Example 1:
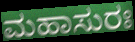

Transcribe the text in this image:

ಮಹಾಸುರಃ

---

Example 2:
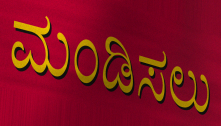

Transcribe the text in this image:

ಮಂಡಿಸಲು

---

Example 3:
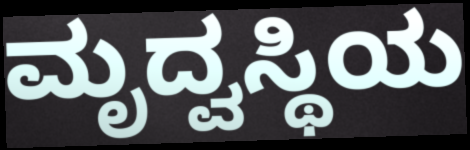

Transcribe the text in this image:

ಮೃದ್ವಸ್ಥಿಯ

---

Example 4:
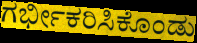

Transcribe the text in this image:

ಗರ್ಭೀಕರಿಸಿಕೊಂಡು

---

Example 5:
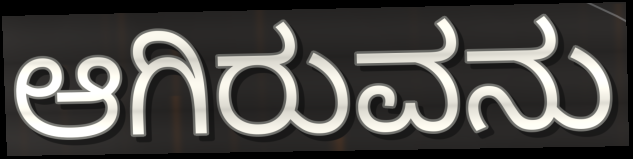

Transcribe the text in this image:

ಆಗಿರುವನು